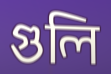
গুলি